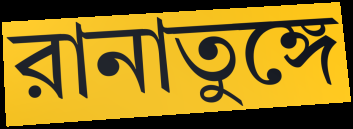
রানাতুঙ্গে